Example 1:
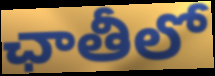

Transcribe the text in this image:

ఛాతీలో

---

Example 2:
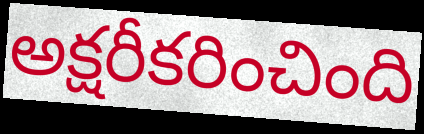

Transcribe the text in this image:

అక్షరీకరించింది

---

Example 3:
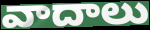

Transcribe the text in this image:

వాదాలు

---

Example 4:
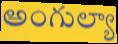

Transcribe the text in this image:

అంగుల్యా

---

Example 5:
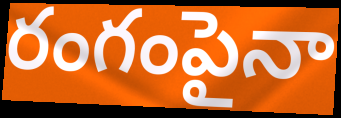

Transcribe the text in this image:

రంగంపైనా